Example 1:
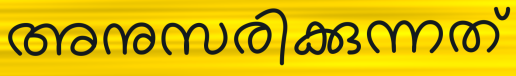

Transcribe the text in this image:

അനുസരിക്കുന്നത്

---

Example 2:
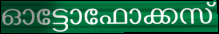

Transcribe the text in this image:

ഓട്ടോഫോക്കസ്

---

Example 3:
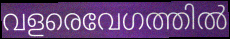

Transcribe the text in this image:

വളരെവേഗത്തിൽ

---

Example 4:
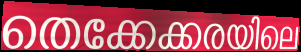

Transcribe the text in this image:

തെക്കേക്കരയിലെ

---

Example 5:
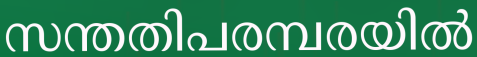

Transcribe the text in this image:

സന്തതിപരമ്പരയിൽ